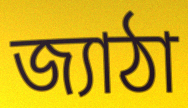
জ্যাঠা